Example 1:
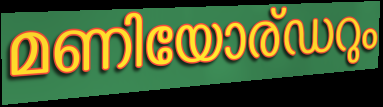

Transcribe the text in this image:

മണിയോര്ഡറും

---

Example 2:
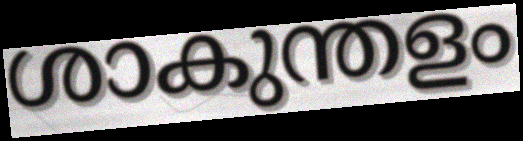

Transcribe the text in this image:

ശാകുന്തളം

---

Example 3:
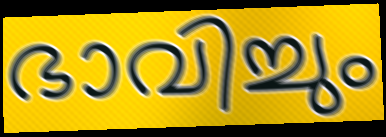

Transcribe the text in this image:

ഭാവിച്ചും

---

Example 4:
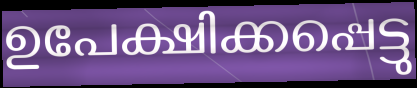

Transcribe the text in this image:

ഉപേക്ഷിക്കപ്പെട്ടു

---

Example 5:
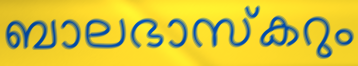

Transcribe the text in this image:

ബാലഭാസ്കറും